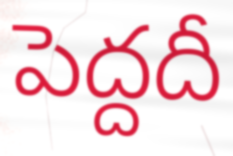
పెద్దదీ